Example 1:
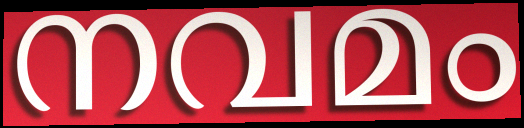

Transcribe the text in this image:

നവമം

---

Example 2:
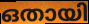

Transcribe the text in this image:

ഒതായി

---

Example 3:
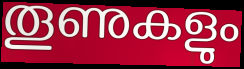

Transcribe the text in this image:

തൂണുകളും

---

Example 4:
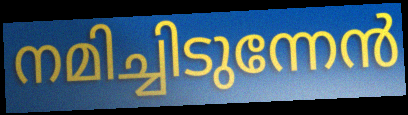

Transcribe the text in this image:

നമിച്ചിടുന്നേൻ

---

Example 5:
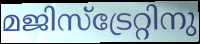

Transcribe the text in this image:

മജിസ്ട്രേറ്റിനു